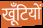
खूँटियों